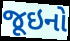
જૂઇનો